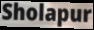
Sholapur